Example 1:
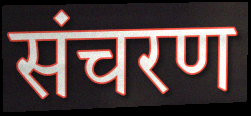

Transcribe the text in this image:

संचरण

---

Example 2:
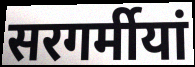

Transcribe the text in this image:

सरगर्मीयां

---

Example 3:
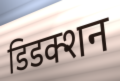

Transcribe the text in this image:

डिडक्शन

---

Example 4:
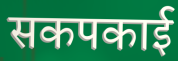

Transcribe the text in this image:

सकपकाई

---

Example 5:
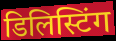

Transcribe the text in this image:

डिलिस्टिंग